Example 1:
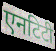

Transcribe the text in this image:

एनटिटी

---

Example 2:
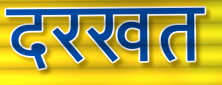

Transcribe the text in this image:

दरखत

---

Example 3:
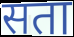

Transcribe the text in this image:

सता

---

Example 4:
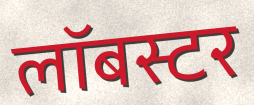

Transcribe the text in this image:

लॉबस्टर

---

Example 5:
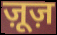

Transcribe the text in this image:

ज़ूज़